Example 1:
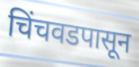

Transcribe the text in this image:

चिंचवडपासून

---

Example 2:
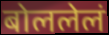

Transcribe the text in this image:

बोललेलं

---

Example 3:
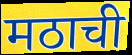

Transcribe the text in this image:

मठाची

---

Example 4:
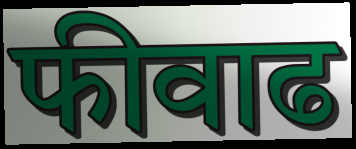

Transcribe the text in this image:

फीवाढ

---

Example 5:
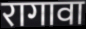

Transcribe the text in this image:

रागावा